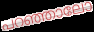
പറഞ്ഞാലോ